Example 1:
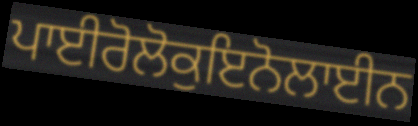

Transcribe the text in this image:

ਪਾਈਰੋਲੋਕੁਇਨੋਲਾਈਨ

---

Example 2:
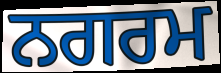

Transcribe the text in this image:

ਨਗਰਮ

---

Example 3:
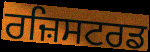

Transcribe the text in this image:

ਰਜ਼ਿਸਟਰਡ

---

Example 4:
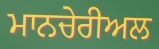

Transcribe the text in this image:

ਮਾਨਚੇਰੀਅਲ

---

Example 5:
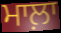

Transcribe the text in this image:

ਮਾਲ਼ਾ